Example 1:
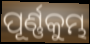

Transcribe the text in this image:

ପୂର୍ଣ୍ଣକୁମ୍ଭ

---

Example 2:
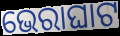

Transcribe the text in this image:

ଭେରାଘାଟ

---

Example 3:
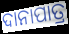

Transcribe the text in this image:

ଦାନାପାତ୍ର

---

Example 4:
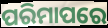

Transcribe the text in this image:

ପରିମାପରେ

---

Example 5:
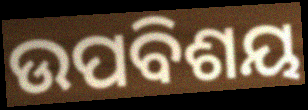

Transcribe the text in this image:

ଉପବିଶୟ